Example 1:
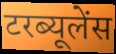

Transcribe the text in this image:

टरब्यूलेंस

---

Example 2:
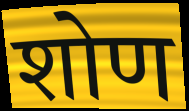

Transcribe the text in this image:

शोण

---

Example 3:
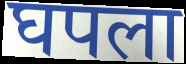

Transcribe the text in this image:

घपला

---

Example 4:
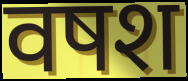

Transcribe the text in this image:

वषश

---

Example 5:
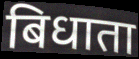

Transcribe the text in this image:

बिधाता